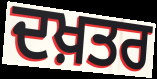
ਦਖ਼ਤਰ